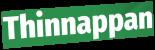
Thinnappan